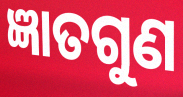
ଜ୍ଞାତଗୁଣ